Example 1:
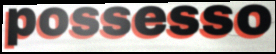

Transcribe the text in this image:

possesso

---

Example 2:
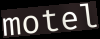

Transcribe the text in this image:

motel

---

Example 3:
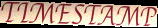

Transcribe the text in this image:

TIMESTAMP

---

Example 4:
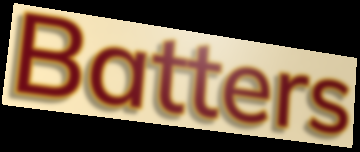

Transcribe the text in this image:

Batters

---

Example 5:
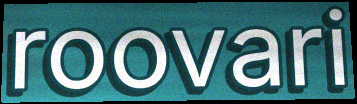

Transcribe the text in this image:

roovari